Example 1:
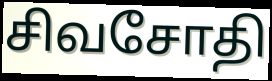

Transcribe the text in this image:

சிவசோதி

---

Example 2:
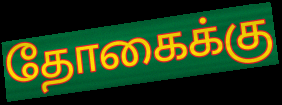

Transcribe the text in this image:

தோகைக்கு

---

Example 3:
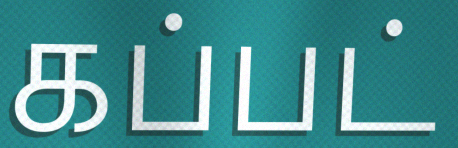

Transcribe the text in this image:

கப்பட்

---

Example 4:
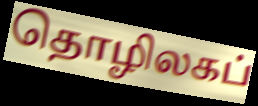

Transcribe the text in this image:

தொழிலகப்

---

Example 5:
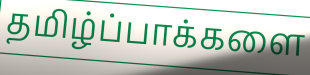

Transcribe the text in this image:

தமிழ்ப்பாக்களை